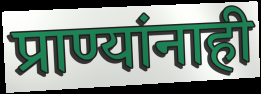
प्राण्यांनाही